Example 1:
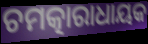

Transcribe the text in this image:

ଚମତ୍କାରାଧାୟକ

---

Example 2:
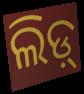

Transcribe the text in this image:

ଲିଡ଼୍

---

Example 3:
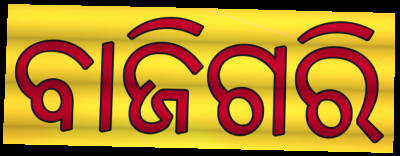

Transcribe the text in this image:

ବାଜିଗରି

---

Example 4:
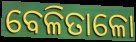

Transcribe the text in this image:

ବେଳିତାଳୋ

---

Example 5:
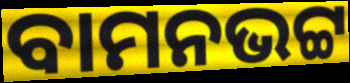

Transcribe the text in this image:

ବାମନଭଟ୍ଟ